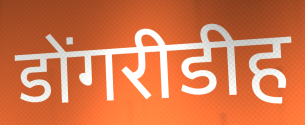
डोंगरीडीह